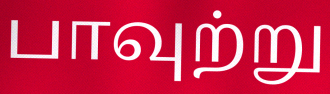
பாவுற்று